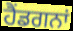
ਹੈਂਡਗਨਾਂ